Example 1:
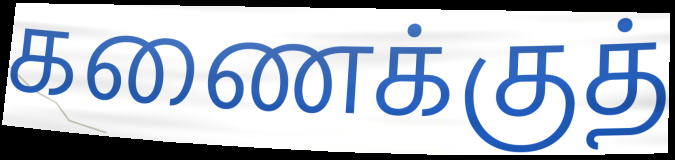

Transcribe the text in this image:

கணைக்குத்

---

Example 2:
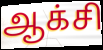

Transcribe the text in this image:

ஆக்சி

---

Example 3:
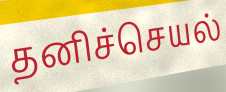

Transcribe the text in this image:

தனிச்செயல்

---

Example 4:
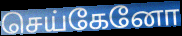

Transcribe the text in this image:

செய்கேனோ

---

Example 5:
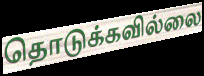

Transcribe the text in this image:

தொடுக்கவில்லை